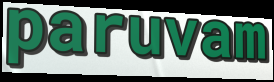
paruvam